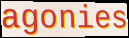
agonies